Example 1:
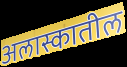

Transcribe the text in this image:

अलास्कातील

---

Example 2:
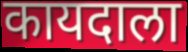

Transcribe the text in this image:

कायदाला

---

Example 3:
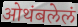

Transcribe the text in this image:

ओथंबलेलं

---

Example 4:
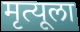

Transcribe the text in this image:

मृत्यूला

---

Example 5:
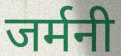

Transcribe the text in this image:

जर्मनी